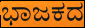
ಭಾಜಕದ